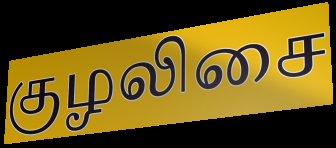
குழலிசை